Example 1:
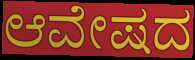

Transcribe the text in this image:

ಆವೇಷದ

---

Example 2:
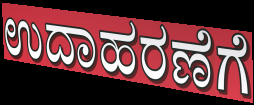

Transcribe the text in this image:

ಉದಾಹರಣೆಗೆ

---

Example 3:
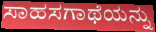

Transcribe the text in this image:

ಸಾಹಸಗಾಥೆಯನ್ನು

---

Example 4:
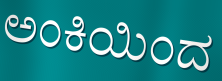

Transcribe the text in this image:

ಅಂಕಿಯಿಂದ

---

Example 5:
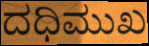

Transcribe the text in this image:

ದಧಿಮುಖ